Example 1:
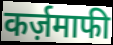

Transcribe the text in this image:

कर्ज़माफी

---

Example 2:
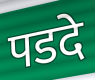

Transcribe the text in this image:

पडदे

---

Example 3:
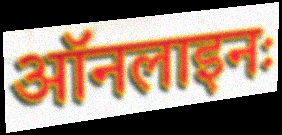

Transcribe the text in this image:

ऑनलाइनः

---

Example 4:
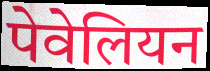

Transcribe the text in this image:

पेवेलियन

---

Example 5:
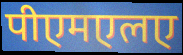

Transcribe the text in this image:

पीएमएलए